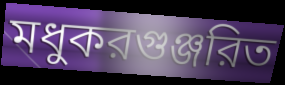
মধুকরগুঞ্জরিত